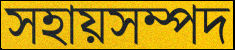
সহায়সম্পদ